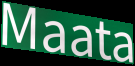
Maata